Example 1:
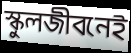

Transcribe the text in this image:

স্কুলজীবনেই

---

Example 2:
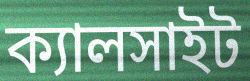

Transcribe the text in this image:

ক্যালসাইট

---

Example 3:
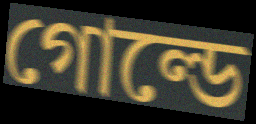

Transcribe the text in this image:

গোল্ডে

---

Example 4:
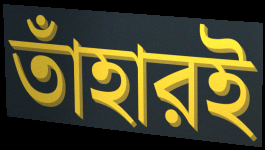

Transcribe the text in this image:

তাঁহারই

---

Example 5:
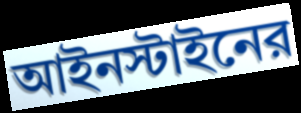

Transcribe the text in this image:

আইনস্টাইনের